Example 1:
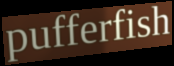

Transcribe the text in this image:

pufferfish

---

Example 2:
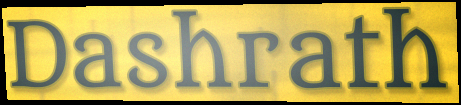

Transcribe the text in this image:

Dashrath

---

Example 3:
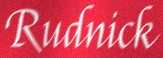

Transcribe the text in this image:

Rudnick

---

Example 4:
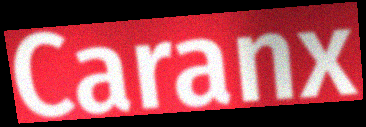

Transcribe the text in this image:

Caranx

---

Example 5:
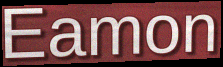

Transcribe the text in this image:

Eamon